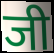
जी